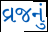
વ્રજનું